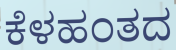
ಕೆಳಹಂತದ